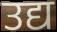
उद्य